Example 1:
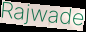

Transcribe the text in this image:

Rajwade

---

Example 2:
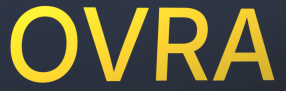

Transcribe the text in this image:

OVRA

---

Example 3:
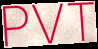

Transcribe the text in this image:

PVT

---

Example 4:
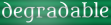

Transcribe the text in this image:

degradable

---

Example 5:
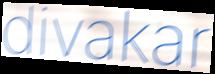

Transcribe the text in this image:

divakar